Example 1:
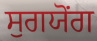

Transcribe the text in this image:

ਸੁਗਯੋਂਗ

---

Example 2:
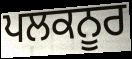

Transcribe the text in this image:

ਪਲਕਨੂਰ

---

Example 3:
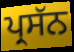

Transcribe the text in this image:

ਪ੍ਰਸੱਨ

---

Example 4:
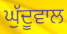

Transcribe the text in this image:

ਘੁੱਦੂਵਾਲ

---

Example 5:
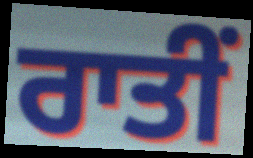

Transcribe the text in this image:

ਰਾਤੀਂ